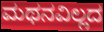
ಮಥನವಿಲ್ಲದ